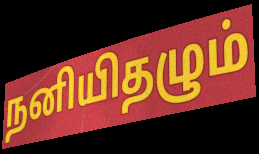
நனியிதழும்